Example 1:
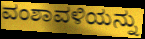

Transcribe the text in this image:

ವಂಶಾವಳಿಯನ್ನು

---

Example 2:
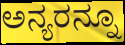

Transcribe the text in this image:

ಅನ್ಯರನ್ನೂ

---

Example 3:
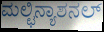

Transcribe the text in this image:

ಮಲ್ಟಿನ್ಯಾಶನಲ್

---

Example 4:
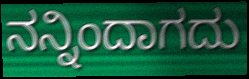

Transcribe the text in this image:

ನನ್ನಿಂದಾಗದು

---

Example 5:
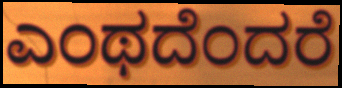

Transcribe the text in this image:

ಎಂಥದೆಂದರೆ